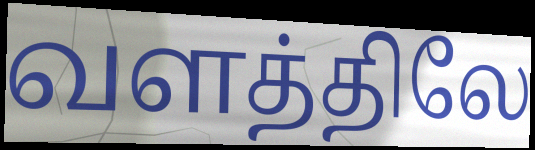
வளத்திலே